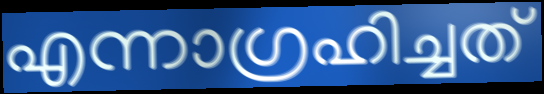
എന്നാഗ്രഹിച്ചത്